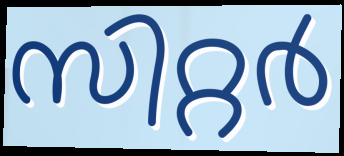
സിറ്റർ